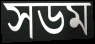
সডম